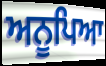
ਅਨੂਪਿਆ